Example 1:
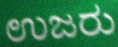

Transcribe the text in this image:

ಉಜರು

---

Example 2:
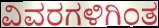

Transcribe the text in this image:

ವಿವರಗಳಿಗಿಂತ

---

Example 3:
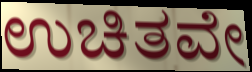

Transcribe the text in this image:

ಉಚಿತವೇ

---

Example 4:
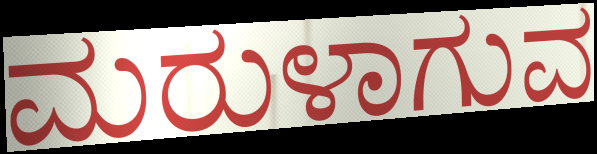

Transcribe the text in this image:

ಮರುಳಾಗುವ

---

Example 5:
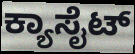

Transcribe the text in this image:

ಕ್ಯಾಸೈಟ್